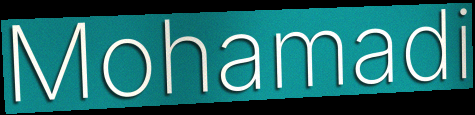
Mohamadi